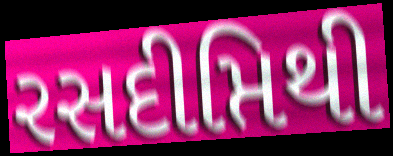
રસદીપ્તિથી